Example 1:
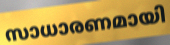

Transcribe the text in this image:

സാധാരണമായി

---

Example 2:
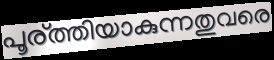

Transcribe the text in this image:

പൂര്ത്തിയാകുന്നതുവരെ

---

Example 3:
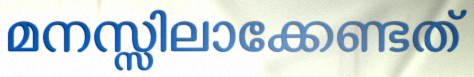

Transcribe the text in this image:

മനസ്സിലാക്കേണ്ടത്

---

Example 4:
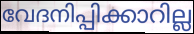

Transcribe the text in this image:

വേദനിപ്പിക്കാറില്ല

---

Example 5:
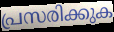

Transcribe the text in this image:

പ്രസരിക്കുക